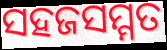
ସହଜସମ୍ମତ